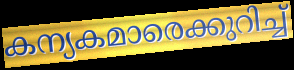
കന്യകമാരെക്കുറിച്ച്